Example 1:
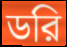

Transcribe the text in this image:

ডরি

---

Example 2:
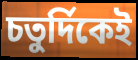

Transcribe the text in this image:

চতুর্দিকেই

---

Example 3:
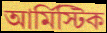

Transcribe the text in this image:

আর্মিস্টিক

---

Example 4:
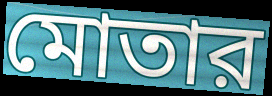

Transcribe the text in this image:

মোতার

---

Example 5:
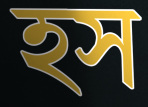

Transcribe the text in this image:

হস